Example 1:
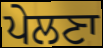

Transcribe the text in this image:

ਪੇਲਣਾ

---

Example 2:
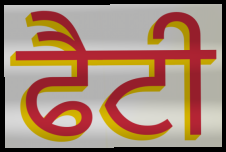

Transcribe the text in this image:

ਫੈਟੀ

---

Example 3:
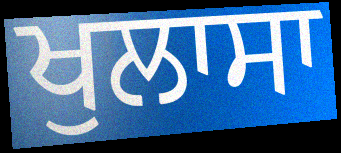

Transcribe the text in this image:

ਖੁਲਾਸਾ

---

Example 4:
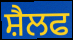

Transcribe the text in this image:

ਸ਼ੈਲਫ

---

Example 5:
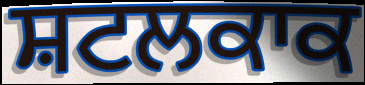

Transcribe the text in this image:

ਸ਼ਟਲਕਾਕ